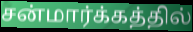
சன்மார்க்கத்தில்